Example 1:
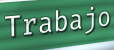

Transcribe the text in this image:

Trabajo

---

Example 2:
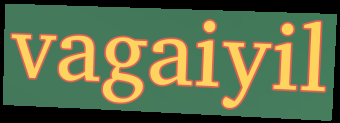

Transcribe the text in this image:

vagaiyil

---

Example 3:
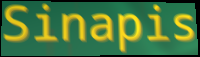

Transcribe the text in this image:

Sinapis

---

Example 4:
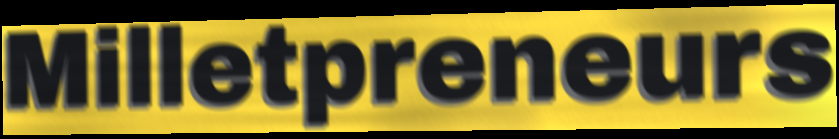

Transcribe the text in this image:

Milletpreneurs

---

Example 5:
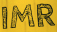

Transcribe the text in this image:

IMR